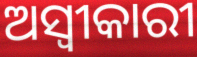
ଅସ୍ଵୀକାରୀ